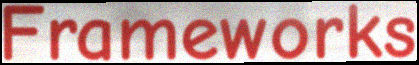
Frameworks